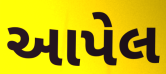
આપેલ